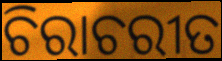
ଚିରାଚରୀତ